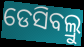
ଡେସିବଲ୍ରୁ